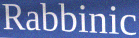
Rabbinic